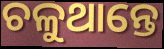
ଚଳୁଥାନ୍ତେ